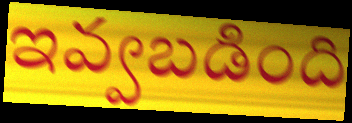
ఇవ్వబడింది